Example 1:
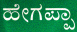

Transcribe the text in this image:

ಹೇಗಪ್ಪಾ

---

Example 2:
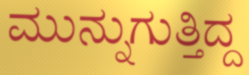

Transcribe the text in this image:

ಮುನ್ನುಗುತ್ತಿದ್ದ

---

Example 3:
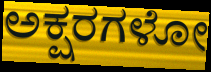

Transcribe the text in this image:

ಅಕ್ಷರಗಳೋ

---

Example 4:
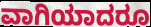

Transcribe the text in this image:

ವಾಗಿಯಾದರೂ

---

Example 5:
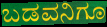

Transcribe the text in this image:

ಬಡವನಿಗೂ